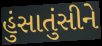
હુંસાતુંસીને